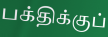
பக்திக்குப்